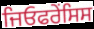
ਜਿਓਫਰੇਂਸਿਸ